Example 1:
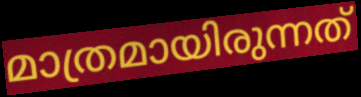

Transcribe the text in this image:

മാത്രമായിരുന്നത്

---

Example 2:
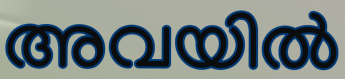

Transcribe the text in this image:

അവയിൽ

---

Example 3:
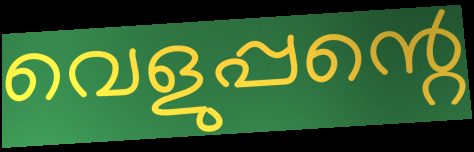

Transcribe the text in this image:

വെളുപ്പന്റെ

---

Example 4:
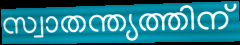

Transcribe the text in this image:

സ്വാതന്ത്യത്തിന്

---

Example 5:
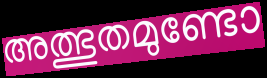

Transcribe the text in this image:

അത്ഭുതമുണ്ടോ